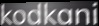
kodkani